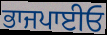
ਭਾਜਪਾਈਓ